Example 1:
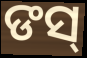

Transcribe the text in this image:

ଙସ୍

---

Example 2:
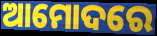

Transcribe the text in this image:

ଆମୋଦରେ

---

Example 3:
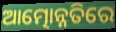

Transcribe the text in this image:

ଆତ୍ମୋନ୍ନତିରେ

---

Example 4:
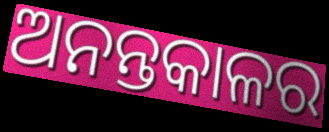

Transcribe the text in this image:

ଅନନ୍ତକାଳର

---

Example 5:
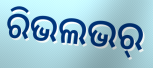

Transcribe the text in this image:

ରିଭଲଭର୍